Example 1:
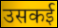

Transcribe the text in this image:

उसकई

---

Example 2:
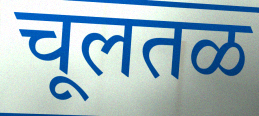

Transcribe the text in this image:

चूलतळ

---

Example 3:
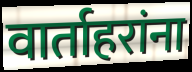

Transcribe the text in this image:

वार्ताहरांना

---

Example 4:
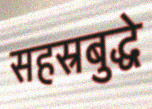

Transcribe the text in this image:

सहस्रबुद्धे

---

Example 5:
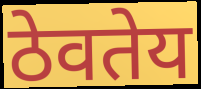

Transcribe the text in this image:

ठेवतेय